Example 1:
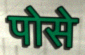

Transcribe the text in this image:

पोसे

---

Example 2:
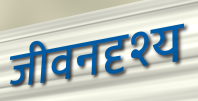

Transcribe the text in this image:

जीवनदृश्य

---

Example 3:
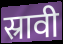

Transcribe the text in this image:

स्रावी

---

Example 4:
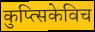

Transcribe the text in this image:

कुप्त्सिकेविच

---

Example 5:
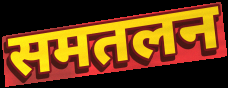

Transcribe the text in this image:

समतलन